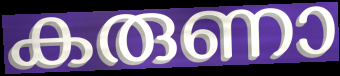
കരുണാ